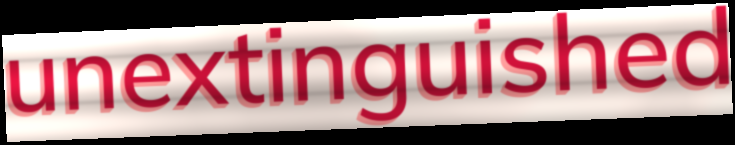
unextinguished